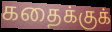
கதைக்குக்